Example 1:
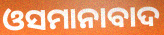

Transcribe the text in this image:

ଓସମାନାବାଦ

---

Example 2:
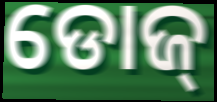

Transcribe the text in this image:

ଡୋଜ୍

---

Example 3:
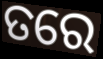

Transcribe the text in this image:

ତରେ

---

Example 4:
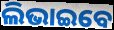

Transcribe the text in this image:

ଲିଭାଇବେ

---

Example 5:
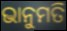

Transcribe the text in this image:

ଭାନୁମତି